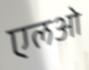
एलओ